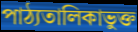
পাঠ্যতালিকাভুক্ত